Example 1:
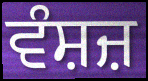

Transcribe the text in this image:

ਵੰਸ਼ਜ਼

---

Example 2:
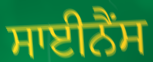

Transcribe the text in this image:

ਸਾਈਨੈਂਸ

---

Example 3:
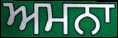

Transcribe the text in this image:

ਅਮਨਾ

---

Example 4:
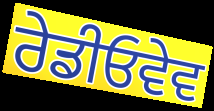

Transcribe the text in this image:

ਰੇਡੀਓਵੇਵ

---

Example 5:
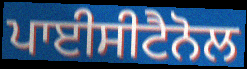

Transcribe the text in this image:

ਪਾਈਸੀਟੈਨੋਲ